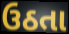
ઉઠતા